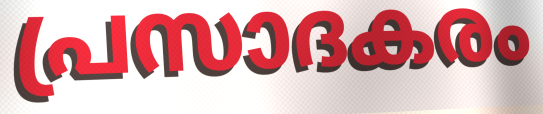
പ്രസാദകരം